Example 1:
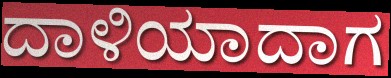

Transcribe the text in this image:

ದಾಳಿಯಾದಾಗ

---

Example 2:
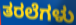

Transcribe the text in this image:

ತರಲೆಗಳು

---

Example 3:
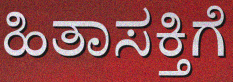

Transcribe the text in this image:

ಹಿತಾಸಕ್ತಿಗೆ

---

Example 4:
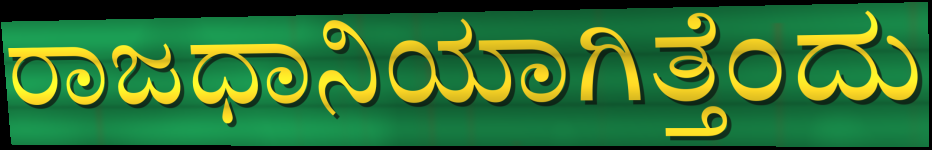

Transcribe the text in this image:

ರಾಜಧಾನಿಯಾಗಿತ್ತೆಂದು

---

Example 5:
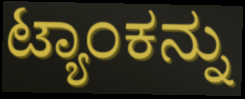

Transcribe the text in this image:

ಟ್ಯಾಂಕನ್ನು